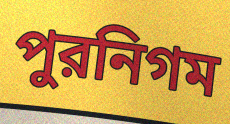
পুরনিগম